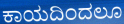
ಕಾಯದಿಂದಲೂ